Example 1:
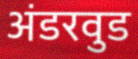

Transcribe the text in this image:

अंडरवुड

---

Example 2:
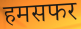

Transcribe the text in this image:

हमसफर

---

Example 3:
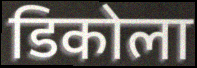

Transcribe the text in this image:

डिकोला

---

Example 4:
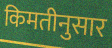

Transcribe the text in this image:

किमतीनुसार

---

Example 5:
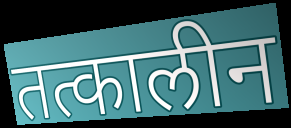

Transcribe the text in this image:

तत्कालीन